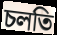
চলতি